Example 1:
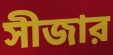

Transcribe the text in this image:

সীজার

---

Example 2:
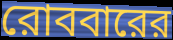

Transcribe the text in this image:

রোববারের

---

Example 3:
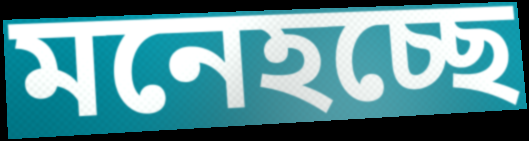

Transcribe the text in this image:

মনেহচ্ছে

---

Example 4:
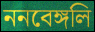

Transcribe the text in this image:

ননবেঙ্গলি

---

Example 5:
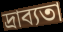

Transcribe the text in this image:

দ্রাব্যতা